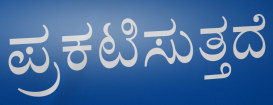
ಪ್ರಕಟಿಸುತ್ತದೆ